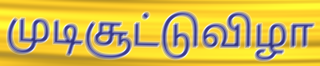
முடிசூட்டுவிழா